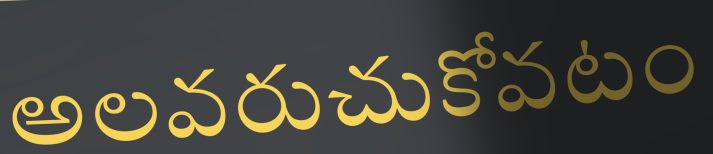
అలవరుచుకోవటం